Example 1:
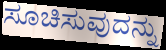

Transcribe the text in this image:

ಸೂಚಿಸುವುದನ್ನು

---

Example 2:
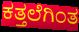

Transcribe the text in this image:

ಕತ್ತಲೆಗಿಂತ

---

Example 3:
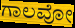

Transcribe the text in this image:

ಗಾಲವೋ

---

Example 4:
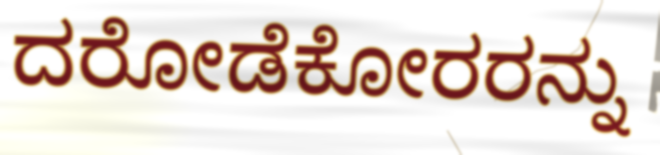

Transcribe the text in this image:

ದರೋಡೆಕೋರರನ್ನು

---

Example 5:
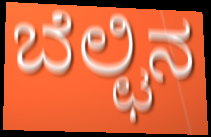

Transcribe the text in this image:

ಬೆಲ್ಟಿನ